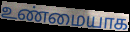
உண்மையாக